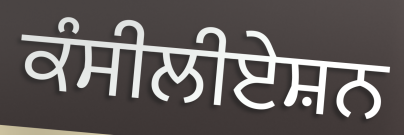
ਕੰਸੀਲੀਏਸ਼ਨ